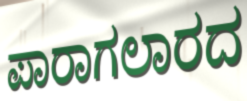
ಪಾರಾಗಲಾರದ